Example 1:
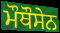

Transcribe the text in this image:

ਮੌਥੌਸੇਨ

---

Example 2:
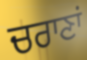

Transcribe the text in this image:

ਚਰਾਣਾਂ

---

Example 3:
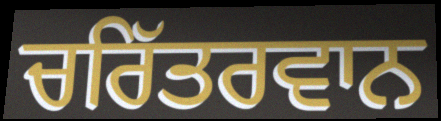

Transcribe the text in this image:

ਚਰਿੱਤਰਵਾਨ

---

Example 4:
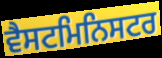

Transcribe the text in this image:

ਵੈਸਟਮਿਨਿਸਟਰ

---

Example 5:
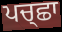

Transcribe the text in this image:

ਪਚ੍ਛਾ